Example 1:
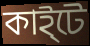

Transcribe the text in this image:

কাই্টে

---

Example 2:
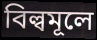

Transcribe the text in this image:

বিল্বমূলে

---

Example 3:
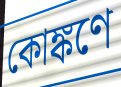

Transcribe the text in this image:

কোঙ্কণে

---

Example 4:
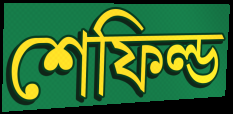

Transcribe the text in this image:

শেফিল্ড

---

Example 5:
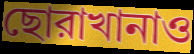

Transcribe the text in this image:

ছোরাখানাও